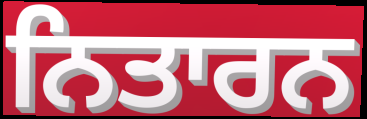
ਨਿਤਾਰਨ